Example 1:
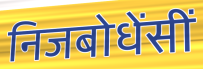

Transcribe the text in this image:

निजबोधेंसीं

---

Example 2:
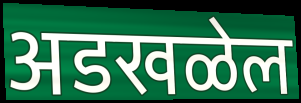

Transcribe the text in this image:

अडखळेल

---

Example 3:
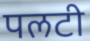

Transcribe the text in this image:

पलटी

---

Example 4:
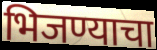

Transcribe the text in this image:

भिजण्याचा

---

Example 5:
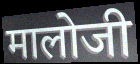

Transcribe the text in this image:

मालोजी